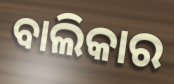
ବାଲିକାର